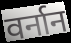
वर्नान